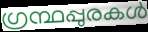
ഗ്രന്ഥപ്പുരകൾ